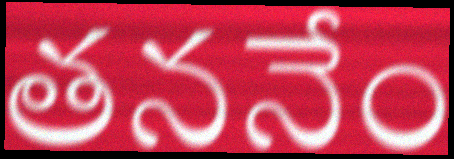
తననేం